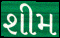
શીમ